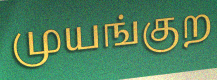
முயங்குற